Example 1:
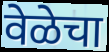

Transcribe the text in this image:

वेळेचा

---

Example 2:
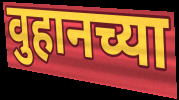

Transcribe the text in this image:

वुहानच्या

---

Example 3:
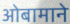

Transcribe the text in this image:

ओबामाने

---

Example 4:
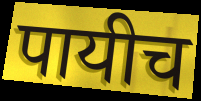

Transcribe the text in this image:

पायीच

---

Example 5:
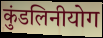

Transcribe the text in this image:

कुंडलिनीयोग